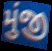
મુંજી